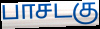
பாசடகு